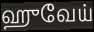
ஹுவேய்